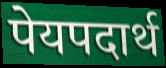
पेयपदार्थ